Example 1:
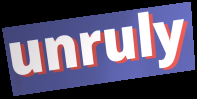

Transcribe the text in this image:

unruly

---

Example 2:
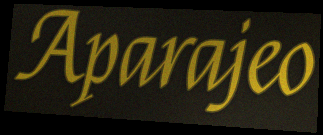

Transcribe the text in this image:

Aparajeo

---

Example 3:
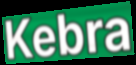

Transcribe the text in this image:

Kebra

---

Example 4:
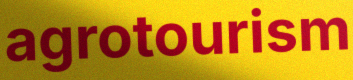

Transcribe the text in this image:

agrotourism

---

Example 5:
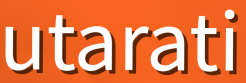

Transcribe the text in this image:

utarati